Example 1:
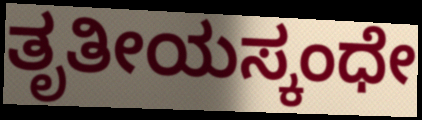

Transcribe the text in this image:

ತೃತೀಯಸ್ಕಂಧೇ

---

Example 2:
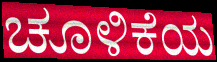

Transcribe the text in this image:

ಚೂಳಿಕೆಯ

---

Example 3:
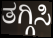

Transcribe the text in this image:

ತಗ್ಗಿಸಿ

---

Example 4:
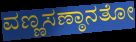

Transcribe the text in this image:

ವಣ್ಣಸಣ್ಠಾನತೋ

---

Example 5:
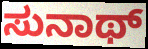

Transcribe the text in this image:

ಸುನಾಥ್